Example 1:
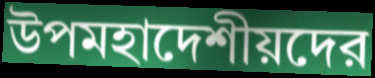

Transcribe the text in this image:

উপমহাদেশীয়দের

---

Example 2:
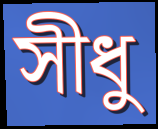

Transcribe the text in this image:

সীধু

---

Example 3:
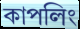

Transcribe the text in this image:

কাপলিং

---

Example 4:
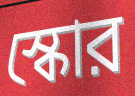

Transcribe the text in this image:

স্কোর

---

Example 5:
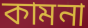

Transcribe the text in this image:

কামনা